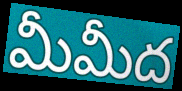
మీమీద